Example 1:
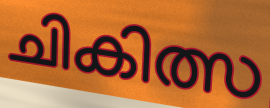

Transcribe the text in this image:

ചികിത്സ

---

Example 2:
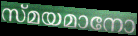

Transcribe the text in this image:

സ്മയമാനോ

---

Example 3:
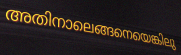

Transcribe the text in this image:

അതിനാലെങ്ങനെയെങ്കിലു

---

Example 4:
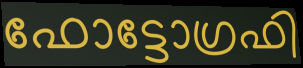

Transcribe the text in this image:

ഫോട്ടോഗ്രഫി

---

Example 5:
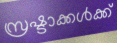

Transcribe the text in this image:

സ്രഷ്ടാക്കൾക്ക്